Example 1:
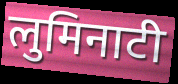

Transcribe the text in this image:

लुमिनाटी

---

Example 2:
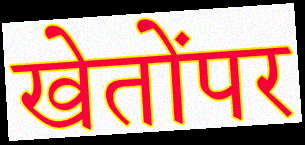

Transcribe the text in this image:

खेतोंपर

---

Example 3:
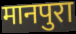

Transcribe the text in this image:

मानपुरा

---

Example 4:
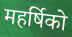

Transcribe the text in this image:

महर्षिको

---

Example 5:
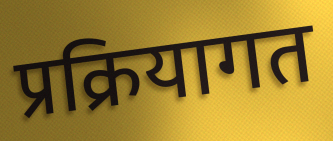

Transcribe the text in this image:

प्रक्रियागत